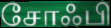
சோஃபி